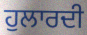
ਹੁਲਾਰਦੀ